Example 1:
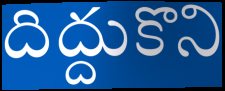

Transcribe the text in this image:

దిద్దుకొని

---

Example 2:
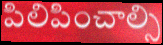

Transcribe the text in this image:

పిలిపించాల్సి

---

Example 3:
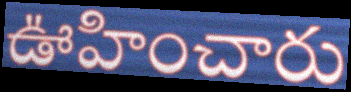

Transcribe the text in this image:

ఊహించారు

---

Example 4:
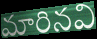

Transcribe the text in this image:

మారినవి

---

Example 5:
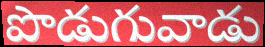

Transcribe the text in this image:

పొడుగువాడు